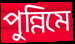
পুন্নিমে